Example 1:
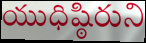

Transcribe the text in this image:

యుధిష్ఠిరుని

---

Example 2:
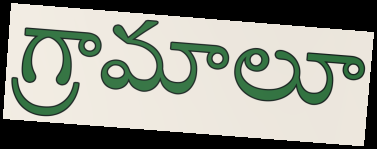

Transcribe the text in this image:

గ్రామాలూ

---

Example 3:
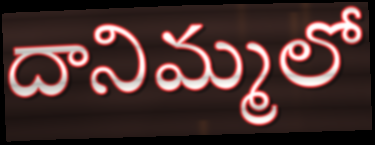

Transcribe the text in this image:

దానిమ్మలో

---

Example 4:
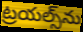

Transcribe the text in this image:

ట్రయల్స్‌ను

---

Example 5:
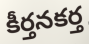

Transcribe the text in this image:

కీర్తనకర్త